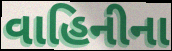
વાહિનીના